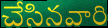
చేసినవారి